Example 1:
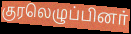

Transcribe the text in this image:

குரலெழுப்பினர்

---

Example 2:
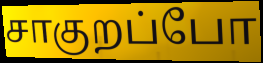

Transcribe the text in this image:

சாகுறப்போ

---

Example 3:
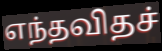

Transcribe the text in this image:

எந்தவிதச்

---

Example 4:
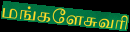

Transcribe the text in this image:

மங்களேசுவரி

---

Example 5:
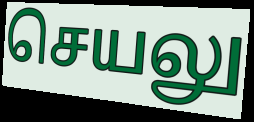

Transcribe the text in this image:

செயலு